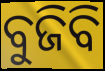
ବୁଜିବି